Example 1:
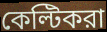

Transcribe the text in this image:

কেল্টিকরা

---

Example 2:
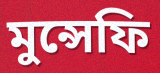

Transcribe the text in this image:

মুন্সেফি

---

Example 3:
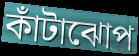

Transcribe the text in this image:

কাঁটাঝোপ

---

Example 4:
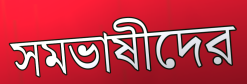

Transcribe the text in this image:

সমভাষীদের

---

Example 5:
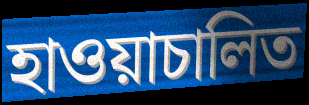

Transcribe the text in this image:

হাওয়াচালিত